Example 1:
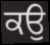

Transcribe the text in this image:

ਕਉੁ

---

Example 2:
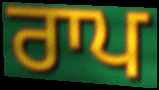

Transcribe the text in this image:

ਰਾਪ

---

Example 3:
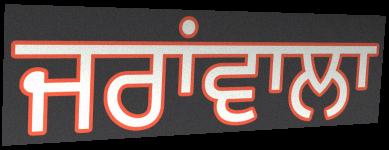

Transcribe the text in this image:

ਜਰਾਂਵਾਲਾ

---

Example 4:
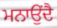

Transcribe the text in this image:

ਮਨਾਉਂਦੈ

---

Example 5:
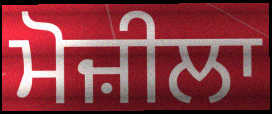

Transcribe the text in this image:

ਮੋਜ਼ੀਲਾ